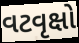
વટવૃક્ષો